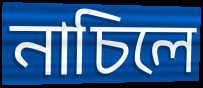
নাচিলে